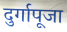
दुर्गापूजा